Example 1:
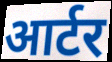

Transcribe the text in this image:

आर्टर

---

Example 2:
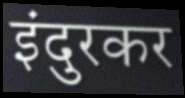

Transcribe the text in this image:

इंदुरकर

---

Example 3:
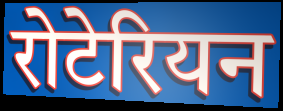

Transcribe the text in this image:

रोटेरियन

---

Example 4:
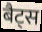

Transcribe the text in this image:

बैट्स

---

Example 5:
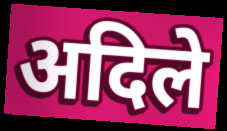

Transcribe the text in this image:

अदिले